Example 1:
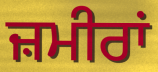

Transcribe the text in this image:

ਜ਼ਮੀਰਾਂ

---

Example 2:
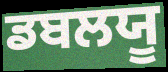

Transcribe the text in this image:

ਡਬਲਯੂ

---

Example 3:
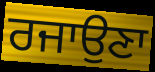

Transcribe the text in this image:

ਰਜਾਉਣਾ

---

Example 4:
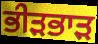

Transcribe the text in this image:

ਭੀੜਭਾੜ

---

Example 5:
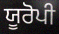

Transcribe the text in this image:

ਯੂਰੋਪੀ